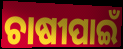
ଚାଷୀପାଇଁ